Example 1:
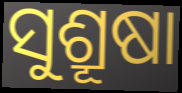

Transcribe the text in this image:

ସୁଶ୍ରୂଷା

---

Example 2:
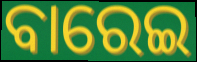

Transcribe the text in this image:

ବାରେଇ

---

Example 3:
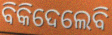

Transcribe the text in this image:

ବିକିଦେଲେବି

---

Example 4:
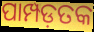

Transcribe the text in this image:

ପାମ୍ପଡ଼ତକ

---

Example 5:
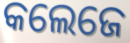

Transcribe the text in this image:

କଲେଜେ